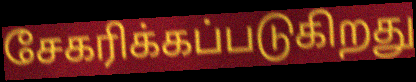
சேகரிக்கப்படுகிறது